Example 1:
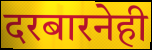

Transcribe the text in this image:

दरबारनेही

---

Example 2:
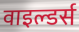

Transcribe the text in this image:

वाइल्डर्स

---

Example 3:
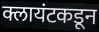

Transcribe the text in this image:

क्लायंटकडून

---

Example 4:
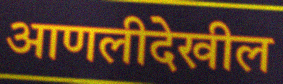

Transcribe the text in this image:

आणलीदेखील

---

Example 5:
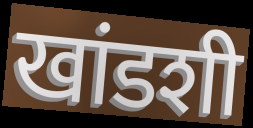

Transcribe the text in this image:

खांडशी